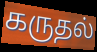
கருதல்